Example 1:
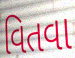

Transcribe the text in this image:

વિતવા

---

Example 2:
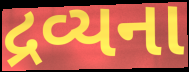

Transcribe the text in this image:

દ્રવ્યના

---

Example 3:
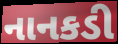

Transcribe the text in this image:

નાનકડી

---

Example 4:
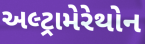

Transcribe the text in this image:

અલ્ટ્રામેરેથોન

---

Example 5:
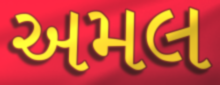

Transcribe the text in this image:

અમલ